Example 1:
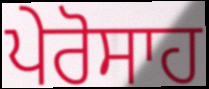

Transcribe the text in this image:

ਪੇਰੋਸਾਹ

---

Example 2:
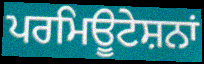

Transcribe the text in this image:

ਪਰਮਿਊਟੇਸ਼ਨਾਂ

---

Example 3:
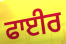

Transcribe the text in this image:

ਫਾਈਰ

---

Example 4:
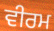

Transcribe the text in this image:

ਵੀਰਮ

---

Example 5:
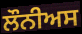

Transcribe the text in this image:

ਲੌਨੀਅਸ